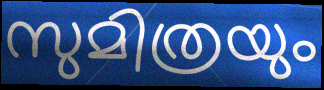
സുമിത്രയും